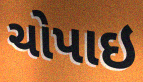
ચોપાઇ